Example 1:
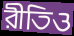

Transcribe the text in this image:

রীতিও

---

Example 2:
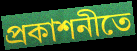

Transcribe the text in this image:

প্রকাশনীতে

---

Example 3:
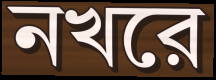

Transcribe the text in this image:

নখরে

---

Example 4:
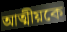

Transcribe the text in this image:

আত্মীয়কে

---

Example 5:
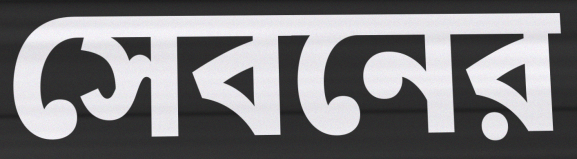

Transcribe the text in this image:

সেবনের